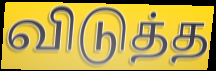
விடுத்த